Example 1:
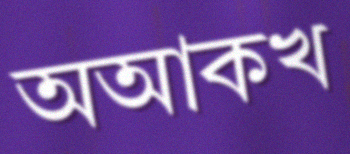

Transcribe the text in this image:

অআকখ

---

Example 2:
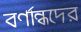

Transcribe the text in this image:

বর্ণান্ধদের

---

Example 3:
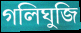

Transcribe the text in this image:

গলিঘুজি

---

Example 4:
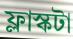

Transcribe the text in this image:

ফ্লাস্কটা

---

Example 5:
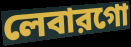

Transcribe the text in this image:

লেবারগো